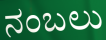
ನಂಬಲು